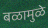
बळामुळे